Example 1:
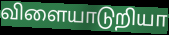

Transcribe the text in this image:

விளையாடுறியா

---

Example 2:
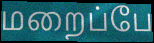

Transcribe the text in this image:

மறைப்பே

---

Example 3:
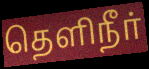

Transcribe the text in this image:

தெளிநீர்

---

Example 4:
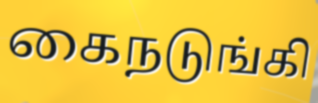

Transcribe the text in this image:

கைநடுங்கி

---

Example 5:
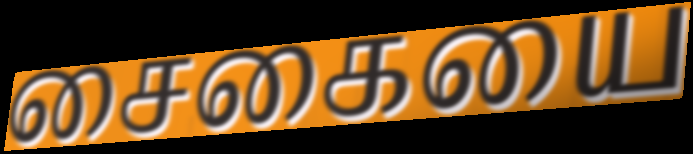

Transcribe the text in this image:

சைகையை